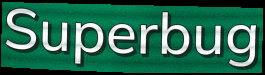
Superbug